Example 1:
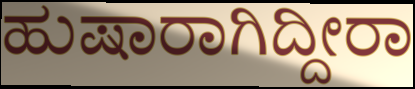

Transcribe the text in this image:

ಹುಷಾರಾಗಿದ್ದೀರಾ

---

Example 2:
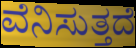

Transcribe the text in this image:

ವೆನಿಸುತ್ತದೆ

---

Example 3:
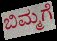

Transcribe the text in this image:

ಬಿಮ್ಮಗೆ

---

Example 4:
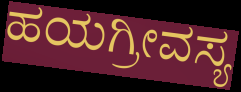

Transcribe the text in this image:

ಹಯಗ್ರೀವಸ್ಯ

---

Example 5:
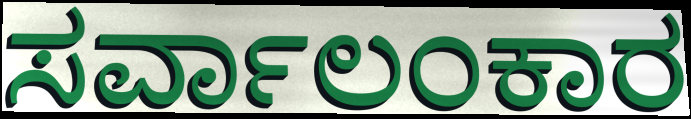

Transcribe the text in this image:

ಸರ್ವಾಲಂಕಾರ